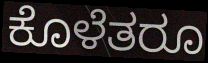
ಕೊಳೆತರೂ